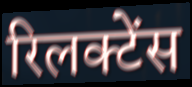
रिलक्टेंस